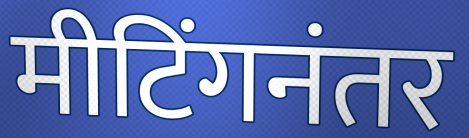
मीटिंगनंतर